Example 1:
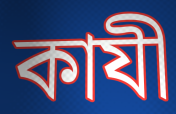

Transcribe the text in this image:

কাযী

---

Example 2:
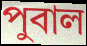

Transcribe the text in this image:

পুবাল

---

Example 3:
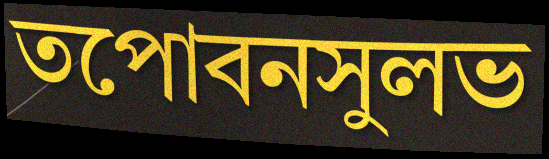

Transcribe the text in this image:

তপোবনসুলভ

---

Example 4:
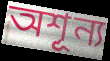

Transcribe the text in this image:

অশূন্য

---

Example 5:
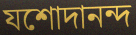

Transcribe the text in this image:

যশোদানন্দ